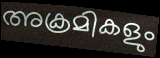
അക്രമികളും